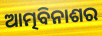
ଆତ୍ମବିନାଶର